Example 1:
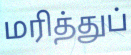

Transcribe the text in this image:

மரித்துப்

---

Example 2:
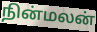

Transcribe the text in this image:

நின்மலன்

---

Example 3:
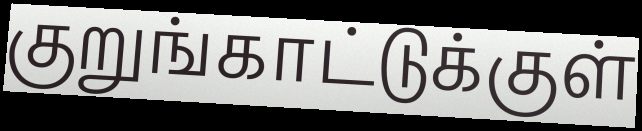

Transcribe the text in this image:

குறுங்காட்டுக்குள்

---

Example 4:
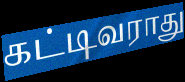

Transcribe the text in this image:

கட்டிவராது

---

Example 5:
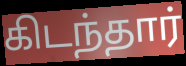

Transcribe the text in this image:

கிடந்தார்